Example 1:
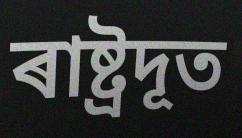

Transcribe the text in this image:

ৰাষ্ট্ৰদূত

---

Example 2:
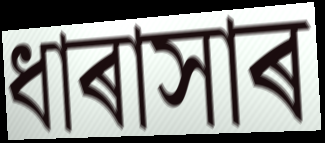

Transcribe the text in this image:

ধাৰাসাৰ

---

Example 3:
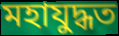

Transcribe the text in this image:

মহাযুদ্ধত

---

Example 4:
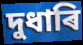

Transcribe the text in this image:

দুধাৰি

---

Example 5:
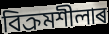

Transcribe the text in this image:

বিক্ৰমশীলাৰ